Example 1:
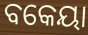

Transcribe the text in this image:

ବକେୟା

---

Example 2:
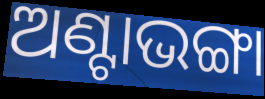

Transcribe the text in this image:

ଅଣ୍ଟାଭଙ୍ଗା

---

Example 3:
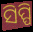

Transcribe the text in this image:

ସିପ୍ପି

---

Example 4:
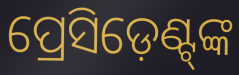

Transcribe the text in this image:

ପ୍ରେସିଡ଼େଣ୍ଟ୍‍ଙ୍କ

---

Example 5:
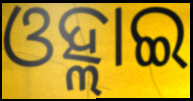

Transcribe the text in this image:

ଓହ୍ଲାଇ